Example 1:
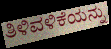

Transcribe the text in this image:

ತಿಳಿವಳಿಕೆಯನ್ನು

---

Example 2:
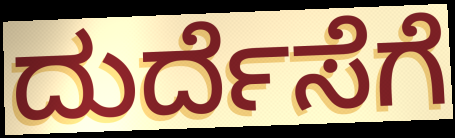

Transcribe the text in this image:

ದುರ್ದೆಸೆಗೆ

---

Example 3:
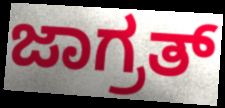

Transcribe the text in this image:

ಜಾಗ್ರತ್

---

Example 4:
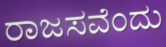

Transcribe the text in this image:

ರಾಜಸವೆಂದು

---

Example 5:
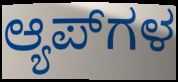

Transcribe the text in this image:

ಆ್ಯಪ್‌ಗಳ